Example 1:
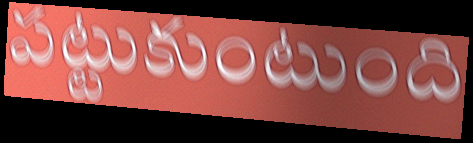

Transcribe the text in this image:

పట్టుకుంటుంది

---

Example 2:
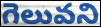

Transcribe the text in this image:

గెలువని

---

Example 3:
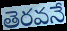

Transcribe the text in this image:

తెరవనే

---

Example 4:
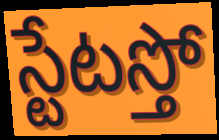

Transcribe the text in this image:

స్టేటస్తో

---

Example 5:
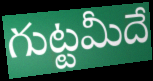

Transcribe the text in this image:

గుట్టమీదే